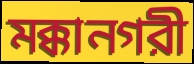
মক্কানগরী